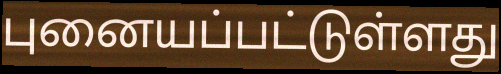
புனையப்பட்டுள்ளது